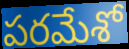
పరమేశో